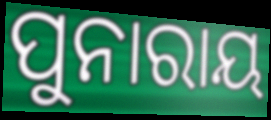
ପୁନାରାୟ